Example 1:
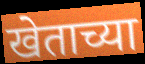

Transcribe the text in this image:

खेताच्या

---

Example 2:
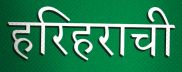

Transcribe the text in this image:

हरिहराची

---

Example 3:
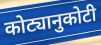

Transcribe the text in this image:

कोट्यानुकोटी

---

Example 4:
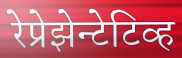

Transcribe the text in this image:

रेप्रेझेन्टेटिव्ह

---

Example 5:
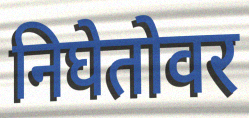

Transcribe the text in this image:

निघेतोवर